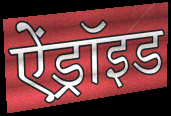
ऐंड्रॉइड